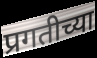
प्रगतीच्या